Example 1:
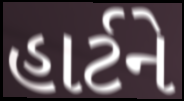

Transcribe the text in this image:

હાર્ટને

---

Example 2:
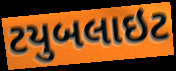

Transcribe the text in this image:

ટયુબલાઇટ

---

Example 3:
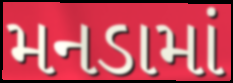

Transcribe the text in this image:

મનડામાં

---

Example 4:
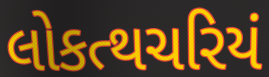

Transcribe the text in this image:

લોકત્થચરિયં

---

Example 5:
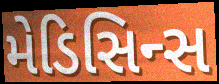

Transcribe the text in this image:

મેડિસિન્સ